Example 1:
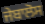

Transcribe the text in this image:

ਜੇਬਾਲੋਸ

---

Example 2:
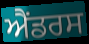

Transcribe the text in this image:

ਐਂਡਰਸ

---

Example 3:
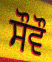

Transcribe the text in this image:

ਸੌਵੌ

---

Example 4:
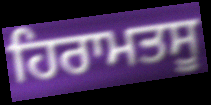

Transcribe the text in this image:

ਹਿਰਾਮਤਸੂ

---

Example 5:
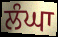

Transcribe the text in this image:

ਲੰਘਾ